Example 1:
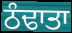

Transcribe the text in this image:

ਠੰਢਾਤਾ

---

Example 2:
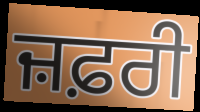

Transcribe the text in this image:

ਜ਼ਫ਼ਰੀ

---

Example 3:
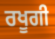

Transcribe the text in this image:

ਰਖੂਗੀ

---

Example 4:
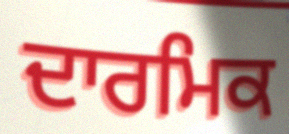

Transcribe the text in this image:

ਦਾਰਮਿਕ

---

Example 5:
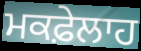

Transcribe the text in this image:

ਮਕਫ਼ੇਲਾਹ